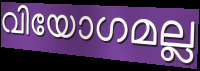
വിയോഗമല്ല